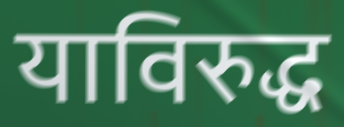
याविरुद्ध